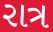
રાત્ર